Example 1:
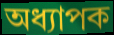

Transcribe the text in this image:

অধ্যাপক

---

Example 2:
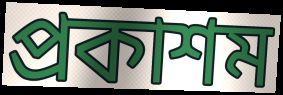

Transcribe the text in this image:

প্ৰকাশম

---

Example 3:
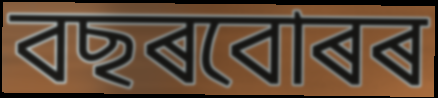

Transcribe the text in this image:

বছৰবোৰৰ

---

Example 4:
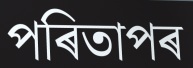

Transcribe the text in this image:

পৰিতাপৰ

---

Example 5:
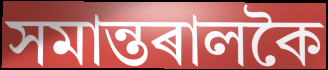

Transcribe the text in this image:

সমান্তৰালকৈ